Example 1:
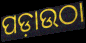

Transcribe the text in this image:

ପଡ଼ାଉଠା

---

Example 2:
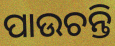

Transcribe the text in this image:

ପାଉଚନ୍ତି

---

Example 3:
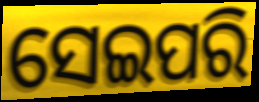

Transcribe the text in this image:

ସେଇପରି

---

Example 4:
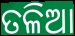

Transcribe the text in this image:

ତଳିଆ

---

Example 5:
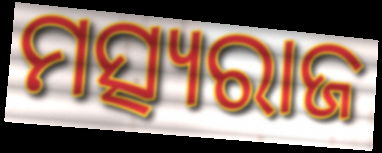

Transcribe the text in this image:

ମତ୍ସ୍ୟରାଜ